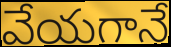
వేయగానే